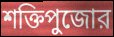
শক্তিপুজোর